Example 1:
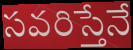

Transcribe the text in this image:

సవరిస్తేనే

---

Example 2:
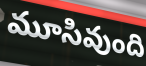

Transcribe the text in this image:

మూసివుంది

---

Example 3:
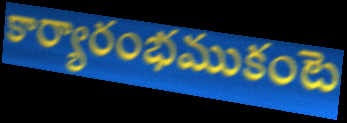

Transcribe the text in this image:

కార్యారంభముకంటె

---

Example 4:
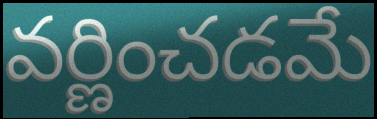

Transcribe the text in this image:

వర్ణించడమే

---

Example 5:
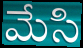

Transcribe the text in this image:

మేసి